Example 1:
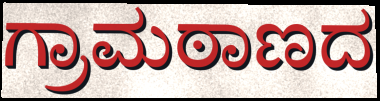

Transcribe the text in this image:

ಗ್ರಾಮಠಾಣದ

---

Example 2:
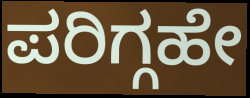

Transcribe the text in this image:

ಪರಿಗ್ಗಹೇ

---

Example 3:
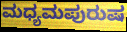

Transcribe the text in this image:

ಮಧ್ಯಮಪುರುಷ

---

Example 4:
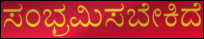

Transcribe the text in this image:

ಸಂಭ್ರಮಿಸಬೇಕಿದೆ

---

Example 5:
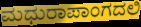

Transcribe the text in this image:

ಮಧುರಾಪಾಂಗದಲಿ